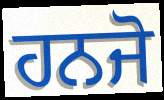
ਹਨਜੋ